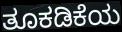
ತೂಕಡಿಕೆಯ